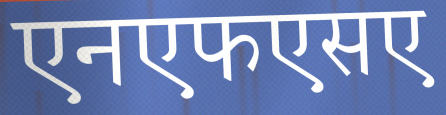
एनएफएसए